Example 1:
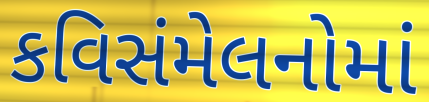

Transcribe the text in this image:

કવિસંમેલનોમાં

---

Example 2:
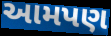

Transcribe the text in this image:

આમપણ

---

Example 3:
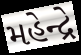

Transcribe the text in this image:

મહેન્દ્રે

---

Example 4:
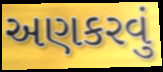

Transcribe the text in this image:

અણકરવું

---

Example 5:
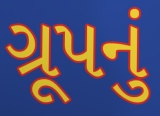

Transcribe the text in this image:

ગ્રૂપનું